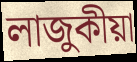
লাজুকীয়া